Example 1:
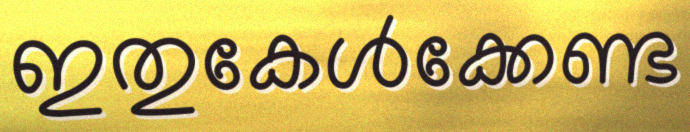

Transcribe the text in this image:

ഇതുകേൾക്കേണ്ട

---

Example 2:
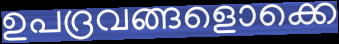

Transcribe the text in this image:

ഉപദ്രവങ്ങളൊക്കെ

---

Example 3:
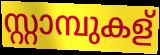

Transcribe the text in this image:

സ്റ്റാമ്പുകള്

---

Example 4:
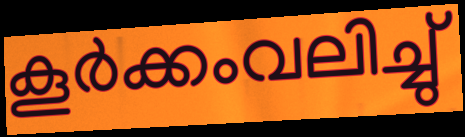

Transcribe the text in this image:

കൂർക്കംവലിച്ചു്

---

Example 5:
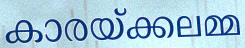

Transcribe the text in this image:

കാരയ്ക്കലമ്മ